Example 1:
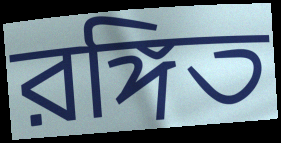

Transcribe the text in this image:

রঙ্গিত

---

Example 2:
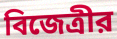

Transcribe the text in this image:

বিজেত্রীর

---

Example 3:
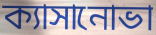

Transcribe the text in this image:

ক্যাসানোভা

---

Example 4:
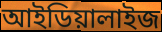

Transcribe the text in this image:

আইডিয়ালাইজ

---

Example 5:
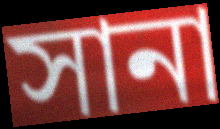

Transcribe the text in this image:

সানা